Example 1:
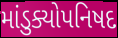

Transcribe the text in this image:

માંડુક્યોપનિષદ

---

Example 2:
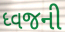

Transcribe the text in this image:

ધ્વજની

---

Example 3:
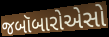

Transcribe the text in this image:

જબૉબારોએસો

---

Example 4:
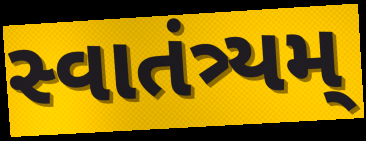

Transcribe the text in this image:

સ્વાતંત્ર્યમ્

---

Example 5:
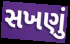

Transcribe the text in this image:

સખણું